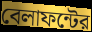
বেলাফন্টের